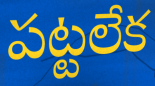
పట్టలేక